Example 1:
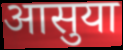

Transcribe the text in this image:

आसुया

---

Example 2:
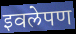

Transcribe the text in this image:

इवलेपण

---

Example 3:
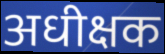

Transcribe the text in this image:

अधीक्षक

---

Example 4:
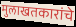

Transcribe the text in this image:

मुलाखतकारांचे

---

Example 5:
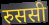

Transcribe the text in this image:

रुससी